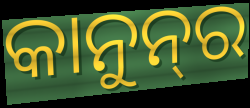
କାନୁନ୍‌ର